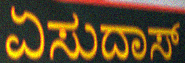
ಏಸುದಾಸ್